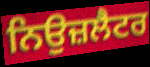
ਨਿਉਜ਼ਲੈਟਰ